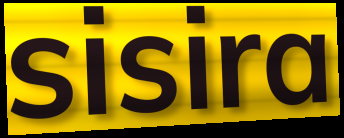
sisira